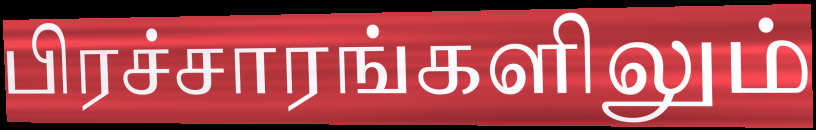
பிரச்சாரங்களிலும்